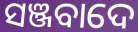
ସଞ୍ଜବାଦେ